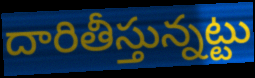
దారితీస్తున్నట్టు